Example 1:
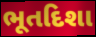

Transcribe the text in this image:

ભૂતદિશા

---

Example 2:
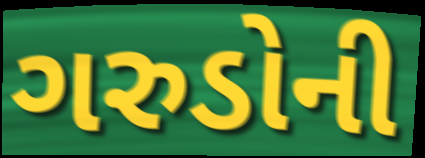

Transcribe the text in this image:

ગરુડોની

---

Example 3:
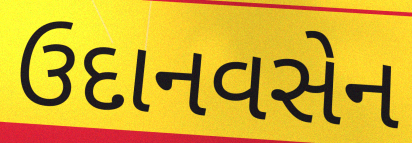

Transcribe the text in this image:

ઉદાનવસેન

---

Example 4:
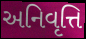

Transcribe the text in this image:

અનિવૃત્તિ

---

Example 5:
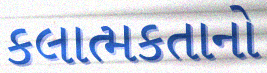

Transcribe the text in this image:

કલાત્મકતાનો